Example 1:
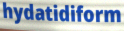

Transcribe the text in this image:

hydatidiform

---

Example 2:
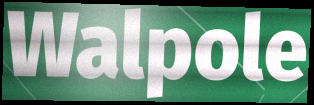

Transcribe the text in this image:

Walpole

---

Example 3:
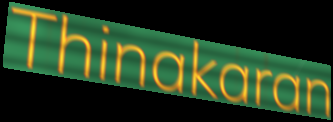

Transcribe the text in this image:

Thinakaran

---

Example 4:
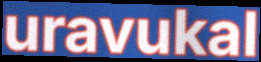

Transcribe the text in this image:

uravukal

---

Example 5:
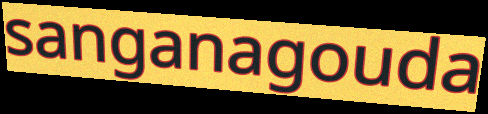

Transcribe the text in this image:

sanganagouda